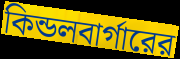
কিন্ডলবার্গারের